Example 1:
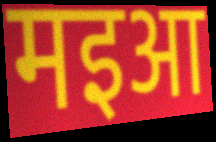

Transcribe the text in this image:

मइआ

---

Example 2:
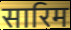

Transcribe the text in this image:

सारिम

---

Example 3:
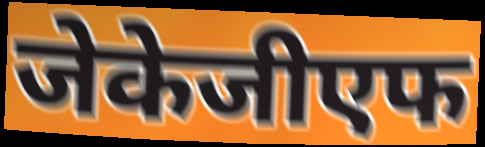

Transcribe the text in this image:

जेकेजीएफ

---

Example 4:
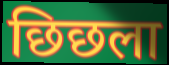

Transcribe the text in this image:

छिछला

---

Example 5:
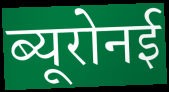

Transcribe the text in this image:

ब्यूरोनई